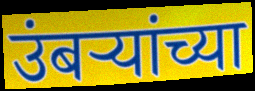
उंबऱ्यांच्या